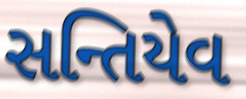
સન્તિયેવ